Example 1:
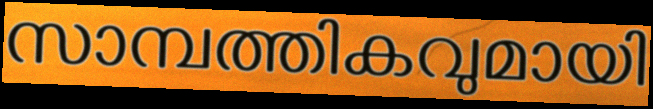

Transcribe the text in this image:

സാമ്പത്തികവുമായി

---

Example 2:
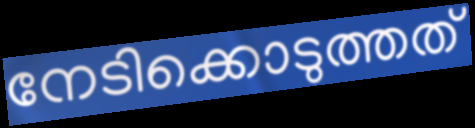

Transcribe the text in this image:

നേടിക്കൊടുത്തത്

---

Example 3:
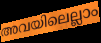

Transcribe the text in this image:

അവയിലെല്ലാം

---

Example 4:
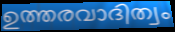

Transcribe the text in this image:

ഉത്തരവാദിത്വം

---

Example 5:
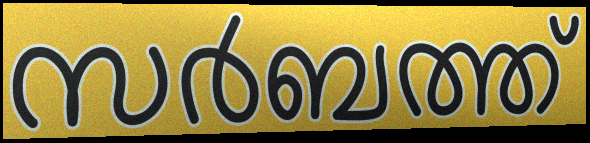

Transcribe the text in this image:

സർബത്ത്